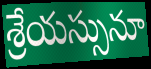
శ్రేయస్సునూ